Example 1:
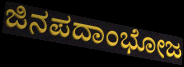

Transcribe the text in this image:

ಜಿನಪದಾಂಭೋಜ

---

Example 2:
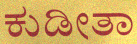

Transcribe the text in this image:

ಕುಡೀತಾ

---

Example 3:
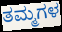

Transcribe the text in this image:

ತಮ್ಮಗಳ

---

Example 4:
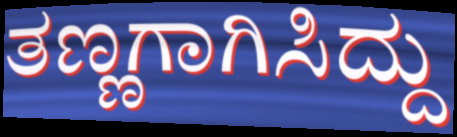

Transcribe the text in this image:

ತಣ್ಣಗಾಗಿಸಿದ್ದು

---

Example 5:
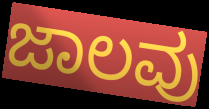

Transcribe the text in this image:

ಜಾಲವು